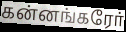
கன்னங்கரேர்